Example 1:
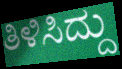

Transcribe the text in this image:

ತಿಳಿಸಿದ್ದು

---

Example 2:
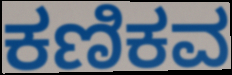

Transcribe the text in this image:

ಕಣಿಕವ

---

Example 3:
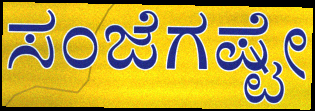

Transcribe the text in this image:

ಸಂಜೆಗಷ್ಟೇ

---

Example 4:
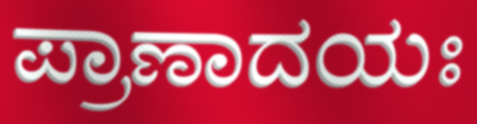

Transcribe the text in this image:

ಪ್ರಾಣಾದಯಃ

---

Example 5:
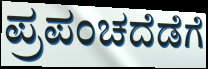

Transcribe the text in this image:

ಪ್ರಪಂಚದೆಡೆಗೆ